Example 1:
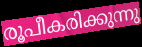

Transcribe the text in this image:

രൂപീകരിക്കുന്നു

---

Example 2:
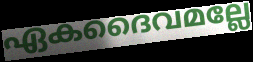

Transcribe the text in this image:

ഏകദൈവമല്ലേ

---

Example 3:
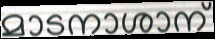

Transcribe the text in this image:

മാടനാശാന്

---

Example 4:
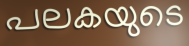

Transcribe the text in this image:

പലകയുടെ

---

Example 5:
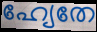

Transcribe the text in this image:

ഹ്യേതേ